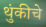
थुंकीचे